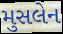
મુસલેન